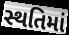
સ્થતિમાં